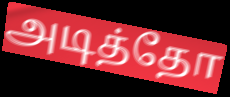
அடித்தோ